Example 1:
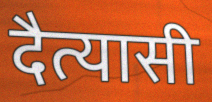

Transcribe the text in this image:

दैत्यासी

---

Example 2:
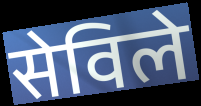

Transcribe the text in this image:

सेविले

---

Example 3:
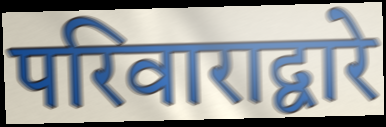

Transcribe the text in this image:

परिवाराद्वारे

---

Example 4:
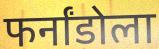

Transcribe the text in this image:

फर्नांडोला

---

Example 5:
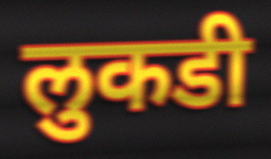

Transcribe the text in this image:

लुकडी